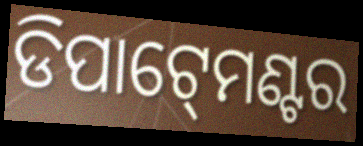
ଡିପାଟ୍‍ମେଣ୍ଟର